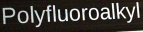
Polyfluoroalkyl